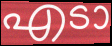
എടാ